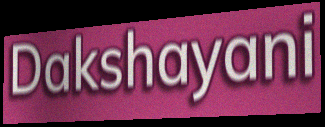
Dakshayani